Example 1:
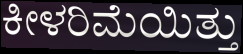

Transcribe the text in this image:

ಕೀಳರಿಮೆಯಿತ್ತು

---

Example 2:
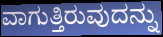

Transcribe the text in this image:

ವಾಗುತ್ತಿರುವುದನ್ನು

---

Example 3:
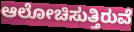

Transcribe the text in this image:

ಆಲೋಚಿಸುತ್ತಿರುವೆ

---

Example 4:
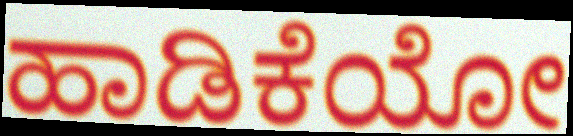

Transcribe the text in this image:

ಹಾಡಿಕೆಯೋ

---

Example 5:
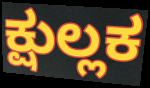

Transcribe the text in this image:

ಕ್ಷುಲ್ಲಕ